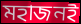
মহাজনই